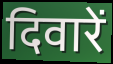
दिवारें